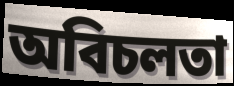
অবিচলতা